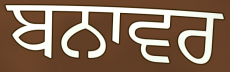
ਬਨਾਵਰ